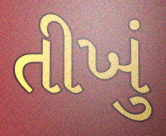
તીખું